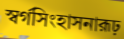
স্বর্গসিংহাসনারূঢ়